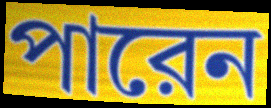
পারেন